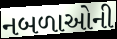
નબળાઓની